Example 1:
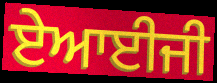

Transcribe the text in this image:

ਏਆਈਜੀ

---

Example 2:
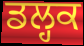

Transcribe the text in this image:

ਡਲ੍ਹਕ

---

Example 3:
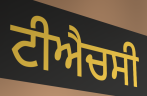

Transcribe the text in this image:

ਟੀਐਚਸੀ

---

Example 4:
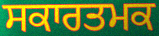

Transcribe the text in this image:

ਸਕਾਰਤਮਕ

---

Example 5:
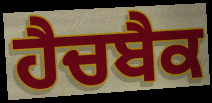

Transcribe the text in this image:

ਹੈਚਬੈਕ